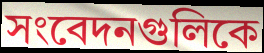
সংবেদনগুলিকে